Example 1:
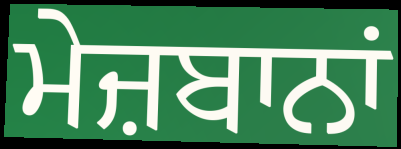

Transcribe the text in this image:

ਮੇਜ਼ਬਾਨਾਂ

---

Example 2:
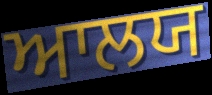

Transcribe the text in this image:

ਆਲਯ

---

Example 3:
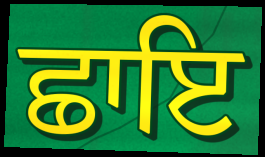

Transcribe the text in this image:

ਛਾਇ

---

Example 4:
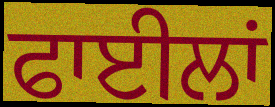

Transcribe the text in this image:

ਫਾਈਲਾਂ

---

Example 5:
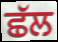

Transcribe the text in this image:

ਛੱਲ